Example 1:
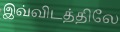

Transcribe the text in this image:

இவ்விடத்திலே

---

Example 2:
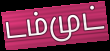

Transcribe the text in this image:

டம்முட்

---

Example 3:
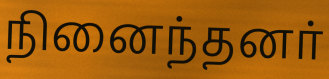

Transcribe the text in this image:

நினைந்தனர்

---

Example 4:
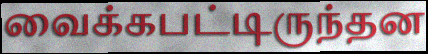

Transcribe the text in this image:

வைக்கபட்டிருந்தன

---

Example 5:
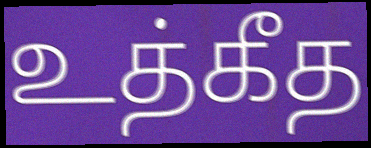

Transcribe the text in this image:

உத்கீத